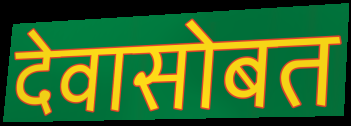
देवासोबत